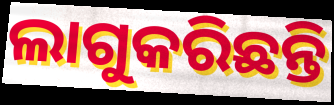
ଲାଗୁକରିଛନ୍ତି